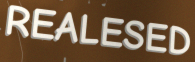
REALESED